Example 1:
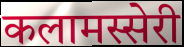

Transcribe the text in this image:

कलामस्सेरी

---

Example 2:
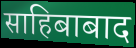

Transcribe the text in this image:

साहिबाबाद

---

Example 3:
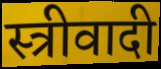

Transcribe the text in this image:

स्त्रीवादी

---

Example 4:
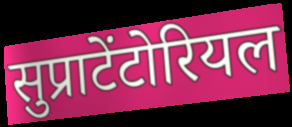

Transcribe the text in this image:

सुप्राटेंटोरियल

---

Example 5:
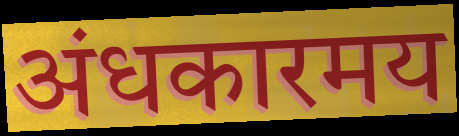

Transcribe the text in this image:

अंधकारमय